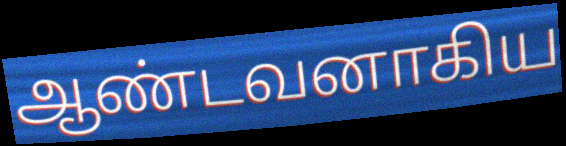
ஆண்டவனாகிய